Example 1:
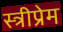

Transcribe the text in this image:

स्त्रीप्रेम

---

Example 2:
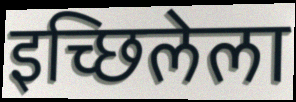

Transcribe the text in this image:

इच्छिलेला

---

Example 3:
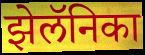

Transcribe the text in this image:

झेलॅनिका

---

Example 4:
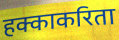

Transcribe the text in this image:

हक्काकरिता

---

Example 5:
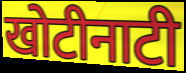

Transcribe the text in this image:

खोटीनाटी